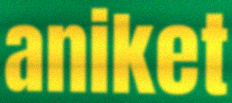
aniket